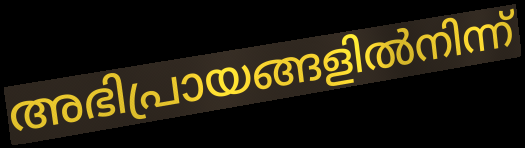
അഭിപ്രായങ്ങളിൽനിന്ന്